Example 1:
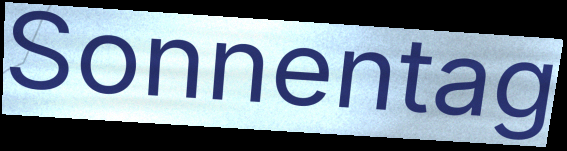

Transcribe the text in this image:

Sonnentag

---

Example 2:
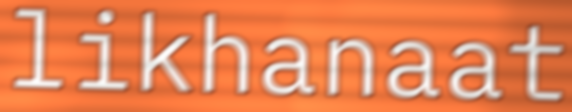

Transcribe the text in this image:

likhanaat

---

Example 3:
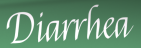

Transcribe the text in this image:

Diarrhea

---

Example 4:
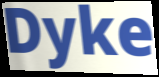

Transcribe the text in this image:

Dyke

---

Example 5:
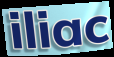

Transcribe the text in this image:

iliac